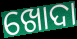
ଖୋଦା